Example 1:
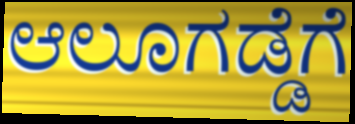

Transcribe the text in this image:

ಆಲೂಗಡ್ಡೆಗೆ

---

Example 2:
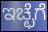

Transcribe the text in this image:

ಇಚ್ಛೆಗೆ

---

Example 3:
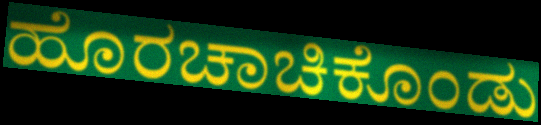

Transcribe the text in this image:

ಹೊರಚಾಚಿಕೊಂಡು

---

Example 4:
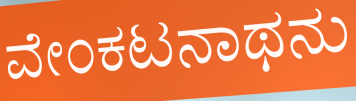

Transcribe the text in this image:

ವೇಂಕಟನಾಥನು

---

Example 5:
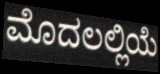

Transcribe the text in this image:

ಮೊದಲಲ್ಲಿಯೆ